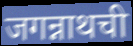
जगन्नाथची